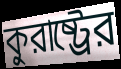
কুরাষ্ট্রের